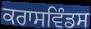
ਕਰਾਸਵਿੰਡਸ